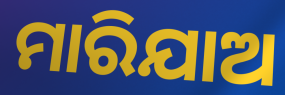
ମାରିଯାଅ